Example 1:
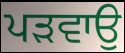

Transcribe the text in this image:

ਪੜਵਾਉ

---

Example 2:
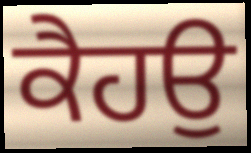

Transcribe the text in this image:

ਕੈਹਉ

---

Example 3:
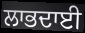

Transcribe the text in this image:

ਲਾਭਦਾਈ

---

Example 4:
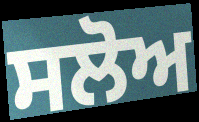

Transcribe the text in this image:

ਸਲੋਅ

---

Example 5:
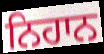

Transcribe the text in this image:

ਨਿਹਾਨ